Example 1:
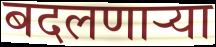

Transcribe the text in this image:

बदलणार्‍या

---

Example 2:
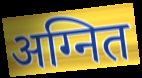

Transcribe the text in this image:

अग्नित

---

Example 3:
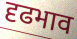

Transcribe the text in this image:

दृढभाव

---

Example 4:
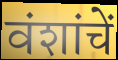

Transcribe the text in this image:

वंशांचें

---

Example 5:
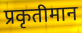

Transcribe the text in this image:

प्रकृतीमान